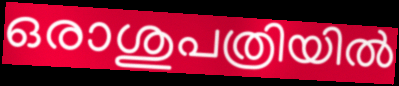
ഒരാശുപത്രിയിൽ